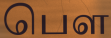
பெள